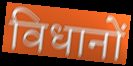
विधानों